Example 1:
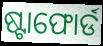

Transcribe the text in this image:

ଷ୍ଟାଫୋର୍ଡ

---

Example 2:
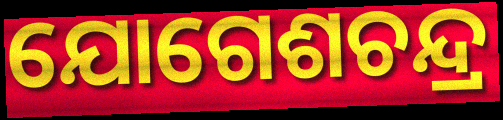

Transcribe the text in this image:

ଯୋଗେଶଚନ୍ଦ୍ର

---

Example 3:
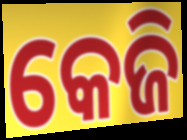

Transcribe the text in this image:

କେଜି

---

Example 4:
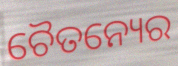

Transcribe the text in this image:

ଚୈତନ୍ୟେର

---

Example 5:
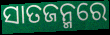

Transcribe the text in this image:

ସାତଜନ୍ମରେ